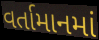
વર્તામાનમાં